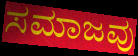
ಸಮಾಜವು